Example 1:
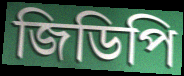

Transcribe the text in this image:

জিডিপি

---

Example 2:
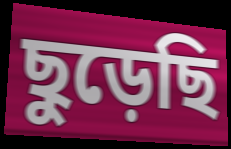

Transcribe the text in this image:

ছুড়েছি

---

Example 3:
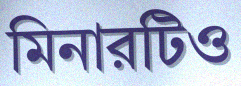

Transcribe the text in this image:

মিনারটিও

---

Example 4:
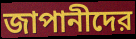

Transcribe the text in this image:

জাপানীদের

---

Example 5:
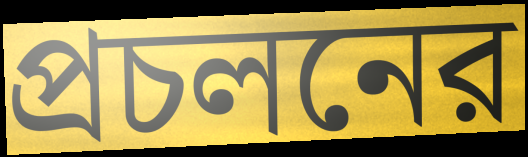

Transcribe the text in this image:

প্রচলনের